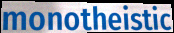
monotheistic